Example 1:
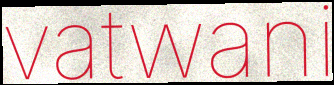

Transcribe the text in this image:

vatwani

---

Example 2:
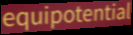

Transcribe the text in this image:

equipotential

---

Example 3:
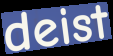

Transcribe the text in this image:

deist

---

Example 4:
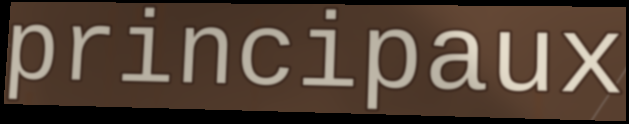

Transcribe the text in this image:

principaux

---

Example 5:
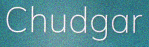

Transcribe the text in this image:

Chudgar